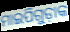
ମାଇପିଗୁଡ଼ାକ